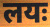
लयः